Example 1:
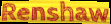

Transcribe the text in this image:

Renshaw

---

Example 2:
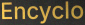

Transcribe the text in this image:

Encyclo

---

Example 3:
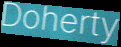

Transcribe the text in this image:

Doherty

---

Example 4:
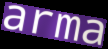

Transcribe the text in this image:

arma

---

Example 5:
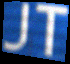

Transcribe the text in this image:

JT